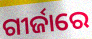
ଗୀର୍ଜାରେ